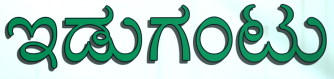
ಇಡುಗಂಟು